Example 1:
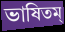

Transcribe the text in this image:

ভাষিতম্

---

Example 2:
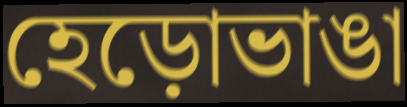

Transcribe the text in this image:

হেড়োভাঙা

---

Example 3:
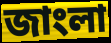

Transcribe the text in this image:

জাংলা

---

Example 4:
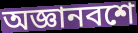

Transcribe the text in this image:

অজ্ঞানবশে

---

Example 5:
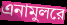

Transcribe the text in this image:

এনামুলরে